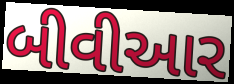
બીવીઆર